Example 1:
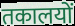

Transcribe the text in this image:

तकालयों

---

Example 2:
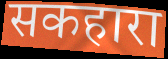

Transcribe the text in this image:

सकहारा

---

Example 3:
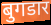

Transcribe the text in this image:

बुगडार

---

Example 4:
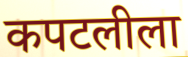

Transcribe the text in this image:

कपटलीला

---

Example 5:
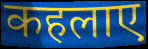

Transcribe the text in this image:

कहलाए